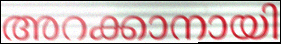
അറക്കാനായി